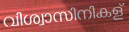
വിശ്വാസിനികള്